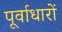
पूर्वाधारों